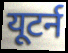
यूटर्न